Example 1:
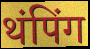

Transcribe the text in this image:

थंपिंग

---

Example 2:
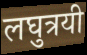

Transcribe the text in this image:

लघुत्रयी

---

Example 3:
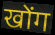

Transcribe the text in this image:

खोंग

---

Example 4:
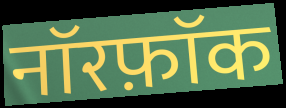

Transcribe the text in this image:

नॉरफ़ॉक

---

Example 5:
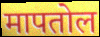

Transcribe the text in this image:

मापतोल